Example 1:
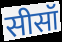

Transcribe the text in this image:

सीसॉ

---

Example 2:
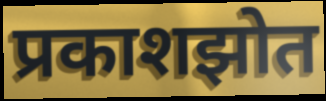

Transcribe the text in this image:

प्रकाशझोत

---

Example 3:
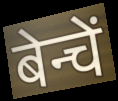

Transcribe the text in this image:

बेन्चें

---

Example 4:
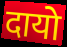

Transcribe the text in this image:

दायो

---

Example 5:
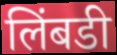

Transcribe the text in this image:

लिंबडी